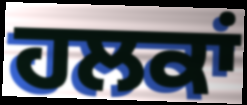
ਹਲਕਾਂ